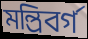
মন্ত্রিবর্গ